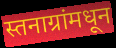
स्तनाग्रांमधून